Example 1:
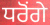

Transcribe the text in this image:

ਧਰੋਂਗੇ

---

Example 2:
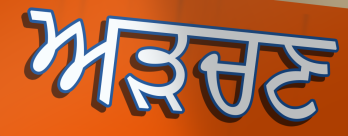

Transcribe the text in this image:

ਅੜਚਣ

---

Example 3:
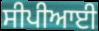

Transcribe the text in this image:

ਸੀਪੀਆਈ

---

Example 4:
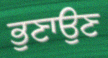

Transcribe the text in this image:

ਭੁਣਾਉਣ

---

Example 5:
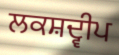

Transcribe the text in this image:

ਲਕਸ਼ਦ੍ਵੀਪ